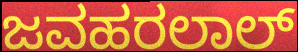
ಜವಹರಲಾಲ್